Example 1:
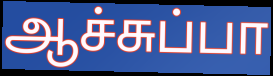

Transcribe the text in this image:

ஆச்சுப்பா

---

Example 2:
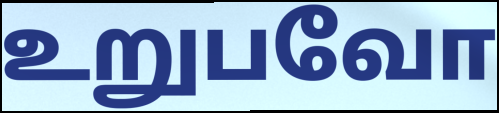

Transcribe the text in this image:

உறுபவோ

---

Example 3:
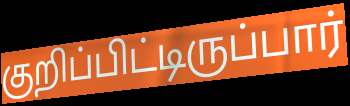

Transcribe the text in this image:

குறிப்பிட்டிருப்பார்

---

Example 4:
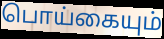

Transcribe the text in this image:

பொய்கையும்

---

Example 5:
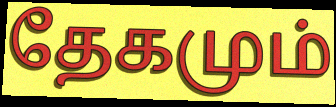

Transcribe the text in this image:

தேகமும்